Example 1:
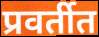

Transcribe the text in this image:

प्रवर्तीत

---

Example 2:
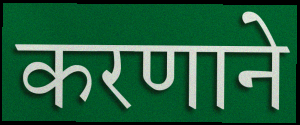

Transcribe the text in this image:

करणाने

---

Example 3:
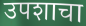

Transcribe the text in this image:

उपशाचा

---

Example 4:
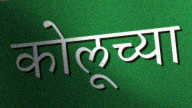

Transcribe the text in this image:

कोलूच्या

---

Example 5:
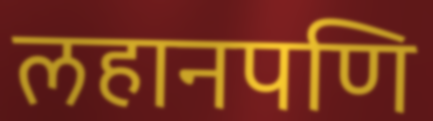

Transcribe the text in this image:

लहानपणि